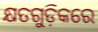
କ୍ଷତଗୁଡ଼ିକରେ